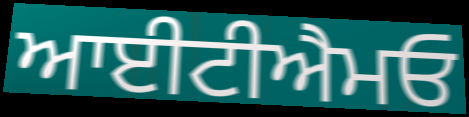
ਆਈਟੀਐਮਓ